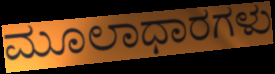
ಮೂಲಾಧಾರಗಳು